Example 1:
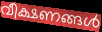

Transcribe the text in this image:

വീക്ഷണങ്ങൾ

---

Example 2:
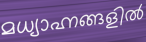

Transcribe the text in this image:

മധ്യാഹ്നങ്ങളിൽ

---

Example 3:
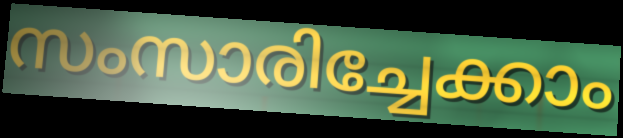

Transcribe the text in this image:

സംസാരിച്ചേക്കാം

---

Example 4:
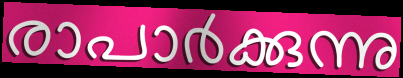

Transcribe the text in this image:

രാപാർക്കുന്നു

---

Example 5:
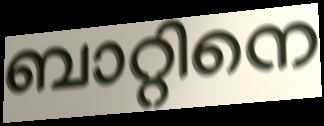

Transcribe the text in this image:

ബാറ്റിനെ